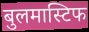
बुलमास्टिफ